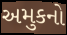
અમુકનો